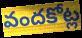
వందకోట్ల